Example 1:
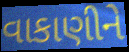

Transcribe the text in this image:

વાકાણીને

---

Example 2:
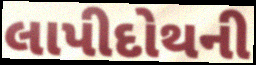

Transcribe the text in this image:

લાપીદોથની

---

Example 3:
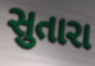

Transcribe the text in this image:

સુતારા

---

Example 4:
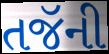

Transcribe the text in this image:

તજૅની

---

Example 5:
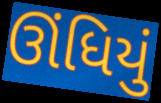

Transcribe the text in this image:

ઊંધિયું